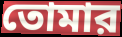
তোমার